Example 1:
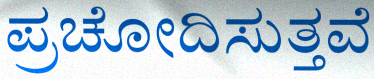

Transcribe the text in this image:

ಪ್ರಚೋದಿಸುತ್ತವೆ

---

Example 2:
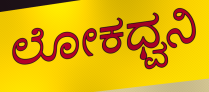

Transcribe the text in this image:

ಲೋಕಧ್ವನಿ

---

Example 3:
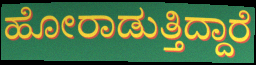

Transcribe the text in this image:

ಹೋರಾಡುತ್ತಿದ್ದಾರೆ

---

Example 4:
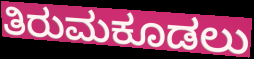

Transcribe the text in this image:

ತಿರುಮಕೂಡಲು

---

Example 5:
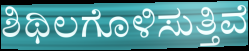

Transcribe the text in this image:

ಶಿಥಿಲಗೊಳಿಸುತ್ತಿವೆ